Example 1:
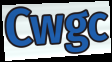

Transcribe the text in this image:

Cwgc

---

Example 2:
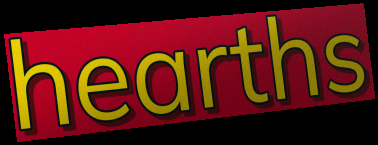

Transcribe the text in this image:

hearths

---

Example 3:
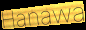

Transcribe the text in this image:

Hanawa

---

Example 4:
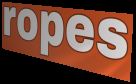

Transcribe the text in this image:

ropes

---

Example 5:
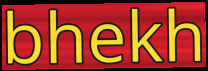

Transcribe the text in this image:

bhekh